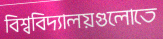
বিশ্ববিদ্যালয়গুলোতে